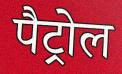
पैट्रोल